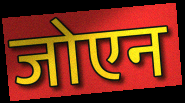
जोएन